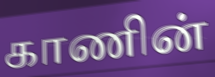
காணின்